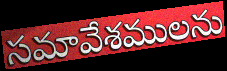
సమావేశములను